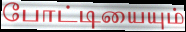
போட்டியையும்